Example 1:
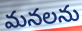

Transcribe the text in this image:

మనలను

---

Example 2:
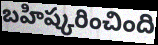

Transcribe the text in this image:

బహిష్కరించింది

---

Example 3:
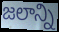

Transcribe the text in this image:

జలాన్ని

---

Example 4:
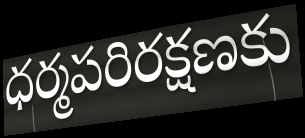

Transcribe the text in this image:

ధర్మపరిరక్షణకు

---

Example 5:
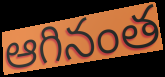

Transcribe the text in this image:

ఆగినంత